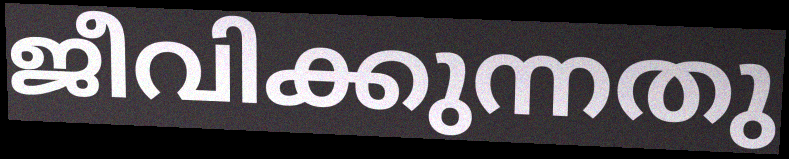
ജീവിക്കുന്നതു